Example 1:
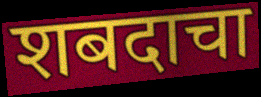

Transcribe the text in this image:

शबदाचा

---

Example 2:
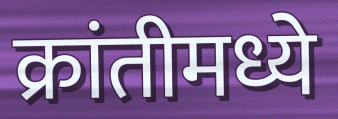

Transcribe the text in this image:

क्रांतीमध्ये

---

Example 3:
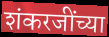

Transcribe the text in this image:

शंकरजींच्या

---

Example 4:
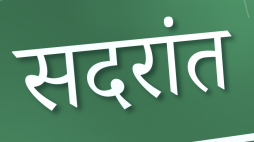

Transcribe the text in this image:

सदरांत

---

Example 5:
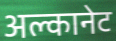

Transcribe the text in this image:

अल्कानेट